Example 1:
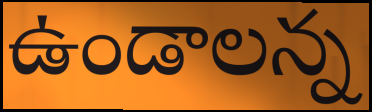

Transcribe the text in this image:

ఉండాలన్న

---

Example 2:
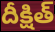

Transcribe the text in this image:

దీక్షిత్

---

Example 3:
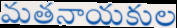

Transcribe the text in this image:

మతనాయకుల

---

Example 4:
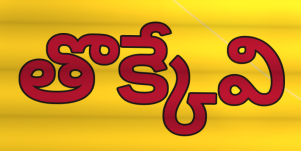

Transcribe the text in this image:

తొక్కేవి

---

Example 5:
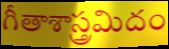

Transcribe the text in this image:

గీతాశాస్త్రమిదం